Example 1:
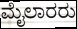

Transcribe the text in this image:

ಮೈಲಾರರು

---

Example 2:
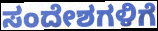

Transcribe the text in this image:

ಸಂದೇಶಗಳಿಗೆ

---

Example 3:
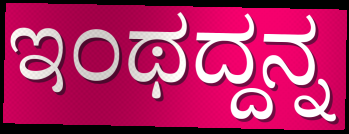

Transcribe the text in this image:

ಇಂಥದ್ದನ್ನ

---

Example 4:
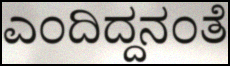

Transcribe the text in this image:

ಎಂದಿದ್ದನಂತೆ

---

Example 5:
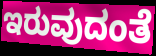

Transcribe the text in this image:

ಇರುವುದಂತೆ